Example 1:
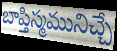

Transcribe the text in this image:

బాప్తిస్మమునిచ్చే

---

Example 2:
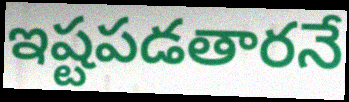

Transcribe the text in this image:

ఇష్టపడతారనే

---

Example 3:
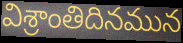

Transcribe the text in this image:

విశ్రాంతిదినమున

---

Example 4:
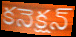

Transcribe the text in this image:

కనెక్షన్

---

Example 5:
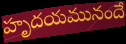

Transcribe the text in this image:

హృదయమునందే